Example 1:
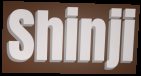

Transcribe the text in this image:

Shinji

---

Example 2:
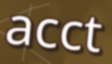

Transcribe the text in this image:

acct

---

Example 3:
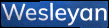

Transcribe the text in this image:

Wesleyan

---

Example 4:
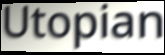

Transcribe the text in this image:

Utopian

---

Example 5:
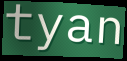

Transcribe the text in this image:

tyan